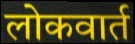
लोकवार्त